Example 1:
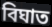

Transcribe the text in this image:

বিঘাত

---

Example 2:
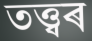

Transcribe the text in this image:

তত্ত্বৰ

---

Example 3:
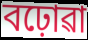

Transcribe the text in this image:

বঢ়োৱা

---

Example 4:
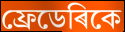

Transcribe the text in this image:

ফ্ৰেডেৰিকে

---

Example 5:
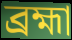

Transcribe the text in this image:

ব্ৰহ্মা